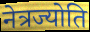
नेत्रज्योति